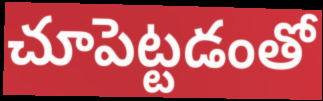
చూపెట్టడంతో